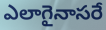
ఎలాగైనాసరే